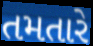
તમતારે